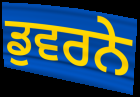
ਡੁਵਰਨੇ